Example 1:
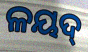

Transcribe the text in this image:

ଳୟଦ୍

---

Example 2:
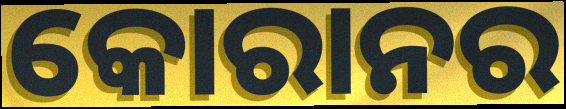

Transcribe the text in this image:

କୋରାନର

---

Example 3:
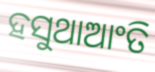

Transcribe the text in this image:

ହସୁଥାଆଂତି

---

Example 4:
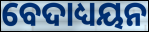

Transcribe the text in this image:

ବେଦାଧ୍ୟୟନ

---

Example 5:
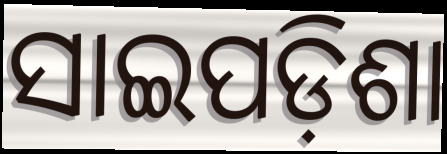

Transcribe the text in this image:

ସାଇପଡ଼ିଶା